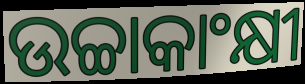
ଉଚ୍ଚାକାଂକ୍ଷୀ